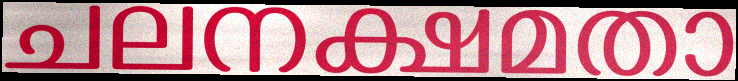
ചലനക്ഷമതാ